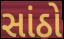
સાંઠો